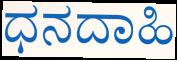
ಧನದಾಹಿ